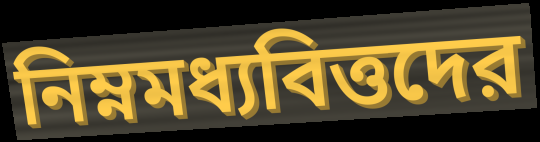
নিম্নমধ্যবিত্তদের